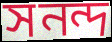
সনন্দ